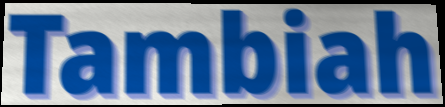
Tambiah